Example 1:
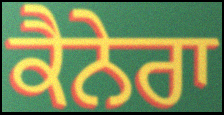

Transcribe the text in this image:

ਕੈਨੇਰਾ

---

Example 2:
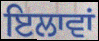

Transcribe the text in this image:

ਇਲਾਵਾਂ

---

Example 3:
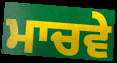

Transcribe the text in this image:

ਮਾਚਵੇ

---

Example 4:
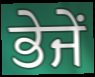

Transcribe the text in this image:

ਭੇਜੇਂ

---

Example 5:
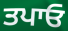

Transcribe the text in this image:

ਤਪਾਓ